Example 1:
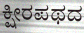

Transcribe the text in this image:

ಕ್ಷೀರಪಥದ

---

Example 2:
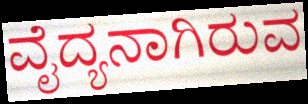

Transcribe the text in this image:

ವೈದ್ಯನಾಗಿರುವ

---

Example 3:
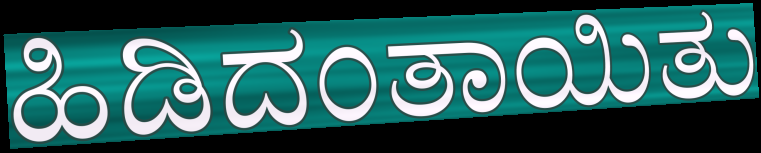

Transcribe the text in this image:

ಹಿಡಿದಂತಾಯಿತು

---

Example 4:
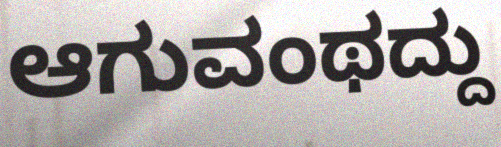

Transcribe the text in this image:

ಆಗುವಂಥದ್ದು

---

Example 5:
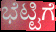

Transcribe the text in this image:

ಭೆಟ್ಟಿಗೆ